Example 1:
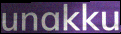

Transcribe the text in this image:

unakku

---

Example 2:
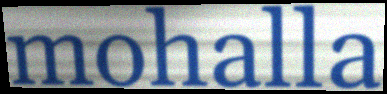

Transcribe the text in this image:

mohalla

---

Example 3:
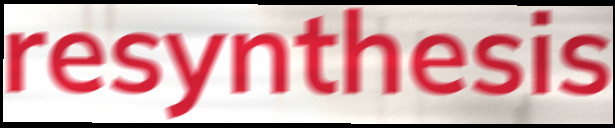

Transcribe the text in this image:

resynthesis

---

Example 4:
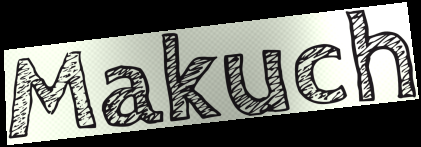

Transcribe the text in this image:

Makuch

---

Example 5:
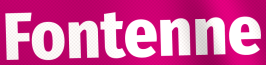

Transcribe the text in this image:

Fontenne